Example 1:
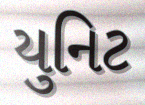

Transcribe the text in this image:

યુનિટ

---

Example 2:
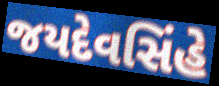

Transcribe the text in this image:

જયદેવસિંહે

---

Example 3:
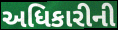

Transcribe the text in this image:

અધિકારીની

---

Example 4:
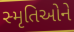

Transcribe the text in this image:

સ્મૃતિઓને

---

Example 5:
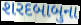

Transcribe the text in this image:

શરદબાબુના